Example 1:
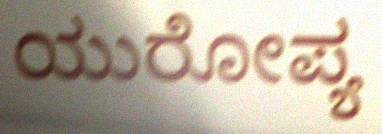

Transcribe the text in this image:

ಯುರೋಪ್ಯ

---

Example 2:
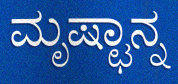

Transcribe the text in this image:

ಮೃಷ್ಟಾನ್ನ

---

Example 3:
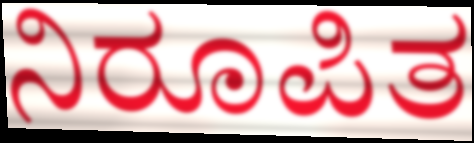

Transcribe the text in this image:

ನಿರೂಪಿತ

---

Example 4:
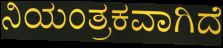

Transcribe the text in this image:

ನಿಯಂತ್ರಕವಾಗಿದೆ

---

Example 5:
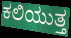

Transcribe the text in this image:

ಕಲಿಯುತ್ತ